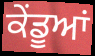
ਕੇਂਡੂਆਂ